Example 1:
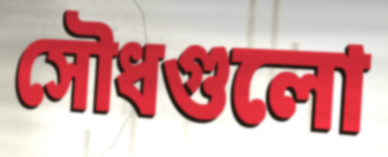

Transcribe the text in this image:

সৌধগুলো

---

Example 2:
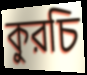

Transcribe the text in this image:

কুরচি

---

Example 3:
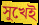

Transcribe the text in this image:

সুখেই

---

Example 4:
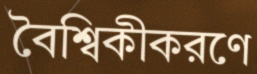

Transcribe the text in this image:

বৈশ্বিকীকরণে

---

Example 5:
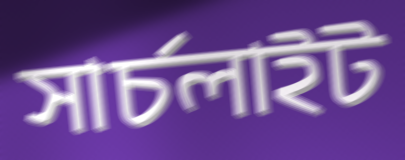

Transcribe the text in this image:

সার্চলাইট